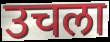
उचला